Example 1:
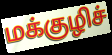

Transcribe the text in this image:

மக்குழிச்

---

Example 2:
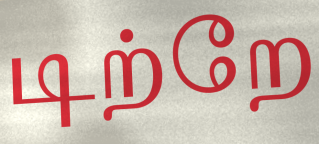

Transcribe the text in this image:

டிற்றே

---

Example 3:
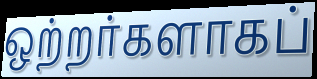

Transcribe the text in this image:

ஒற்றர்களாகப்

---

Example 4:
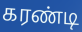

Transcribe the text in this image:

கரண்டி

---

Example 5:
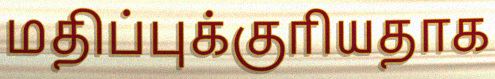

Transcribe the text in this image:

மதிப்புக்குரியதாக